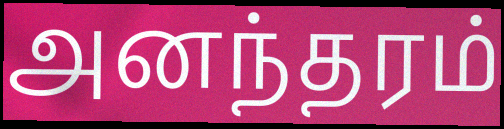
அனந்தரம்